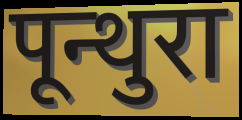
पून्थुरा